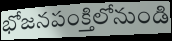
భోజనపంక్తిలోనుండి